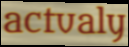
actualy